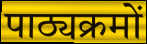
पाठ्यक्रमों